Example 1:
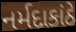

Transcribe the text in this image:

નર્મદાકાંઠે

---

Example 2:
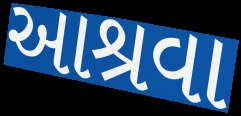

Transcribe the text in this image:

આશ્રવા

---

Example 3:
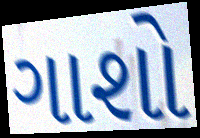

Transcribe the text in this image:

ગાશો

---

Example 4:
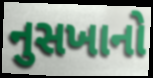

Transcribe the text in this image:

નુસખાનો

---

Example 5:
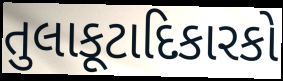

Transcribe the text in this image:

તુલાકૂટાદિકારકો